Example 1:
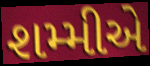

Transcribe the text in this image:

શમ્મીએ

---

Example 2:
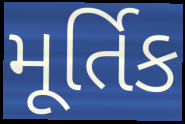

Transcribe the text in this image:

મૂર્તિક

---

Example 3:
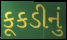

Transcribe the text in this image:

કૂકડીનું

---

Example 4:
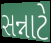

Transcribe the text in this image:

સન્નાટે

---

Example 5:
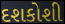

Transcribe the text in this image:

દશકોશી